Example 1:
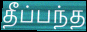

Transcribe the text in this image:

தீப்பந்த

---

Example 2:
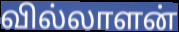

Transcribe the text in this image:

வில்லாளன்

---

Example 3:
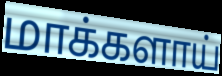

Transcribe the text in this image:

மாக்களாய்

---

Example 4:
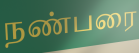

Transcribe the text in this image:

நண்பரை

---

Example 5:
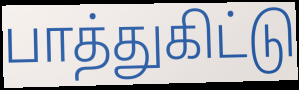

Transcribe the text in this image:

பாத்துகிட்டு